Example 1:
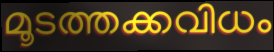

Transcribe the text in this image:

മൂടത്തക്കവിധം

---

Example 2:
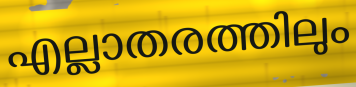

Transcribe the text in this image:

എല്ലാതരത്തിലും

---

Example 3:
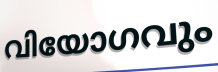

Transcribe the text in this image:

വിയോഗവും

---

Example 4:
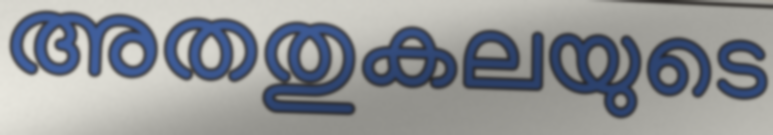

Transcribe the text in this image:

അതതുകലയുടെ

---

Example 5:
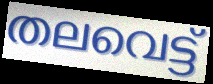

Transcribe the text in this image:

തലവെട്ട്